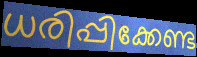
ധരിപ്പിക്കേണ്ട